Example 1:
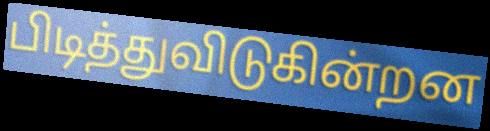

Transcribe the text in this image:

பிடித்துவிடுகின்றன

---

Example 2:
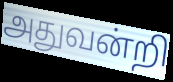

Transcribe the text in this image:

அதுவன்றி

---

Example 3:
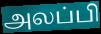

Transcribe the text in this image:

அலப்பி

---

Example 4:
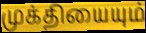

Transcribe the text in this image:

முக்தியையும்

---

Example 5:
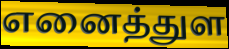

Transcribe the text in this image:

எனைத்துள